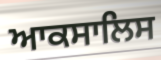
ਆਕਸਾਲਿਸ